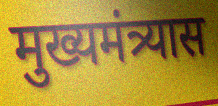
मुख्यमंत्र्यास